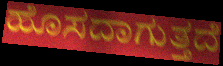
ಹೊಸದಾಗುತ್ತದೆ